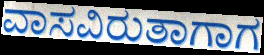
ವಾಸವಿರುತಾಗಾಗ